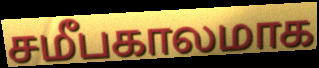
சமீபகாலமாக